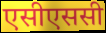
एसीएससी